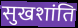
सुखशांति